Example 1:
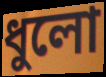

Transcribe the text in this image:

ধুলো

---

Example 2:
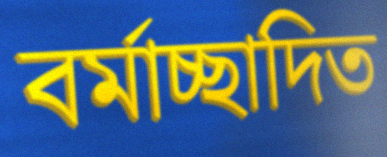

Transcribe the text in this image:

বর্মাচ্ছাদিত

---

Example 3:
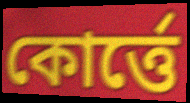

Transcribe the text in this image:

কোর্ত্তে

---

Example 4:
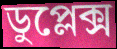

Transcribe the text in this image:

ডুপ্লেক্স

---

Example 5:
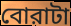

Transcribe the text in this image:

বোরাটা